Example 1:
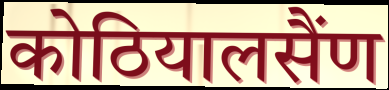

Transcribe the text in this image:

कोठियालसैंण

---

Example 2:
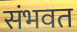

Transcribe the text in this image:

संभवत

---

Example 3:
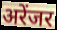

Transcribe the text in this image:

अरेंजर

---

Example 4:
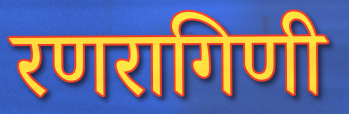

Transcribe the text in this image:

रणरागिणी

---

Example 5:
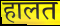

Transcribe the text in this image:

हालत